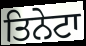
ਤਿਨੇਟਾ